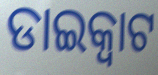
ଡାଇକ୍ଵାଟ